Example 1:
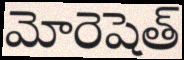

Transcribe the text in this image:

మోరెషెత్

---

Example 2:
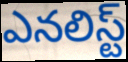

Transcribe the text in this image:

ఎనలిస్ట్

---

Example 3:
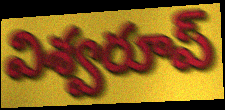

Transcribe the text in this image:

విశ్వరూప్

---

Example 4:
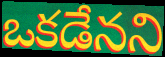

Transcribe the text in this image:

ఒకడేనని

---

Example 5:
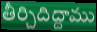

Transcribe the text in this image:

తీర్చిదిద్దాము